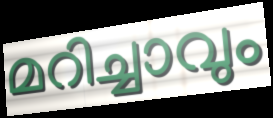
മറിച്ചാവും